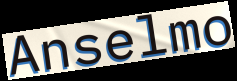
Anselmo